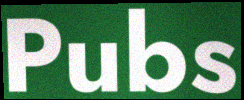
Pubs